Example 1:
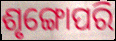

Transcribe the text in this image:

ଶୃଙ୍ଗୋପରି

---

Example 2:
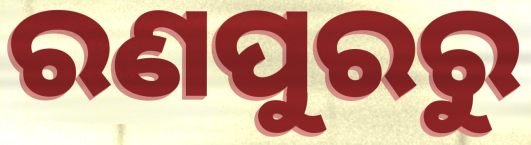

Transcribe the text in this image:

ରଣପୁରରୁ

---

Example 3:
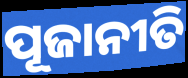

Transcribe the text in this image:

ପୂଜାନୀତି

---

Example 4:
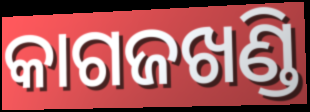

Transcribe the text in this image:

କାଗଜଖଣ୍ଡି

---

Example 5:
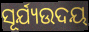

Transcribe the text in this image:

ସୂର୍ଯ୍ୟଉଦୟ